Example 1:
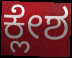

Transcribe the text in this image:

ಕ್ಲೇಶ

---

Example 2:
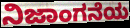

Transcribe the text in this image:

ನಿಜಾಂಗನೆಯ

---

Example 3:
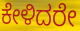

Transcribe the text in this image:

ಕೇಳಿದರೇ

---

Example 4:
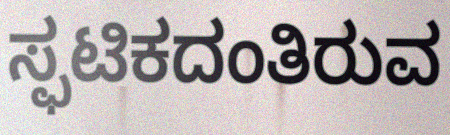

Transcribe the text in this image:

ಸ್ಫಟಿಕದಂತಿರುವ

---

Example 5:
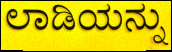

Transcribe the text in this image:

ಲಾಡಿಯನ್ನು